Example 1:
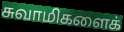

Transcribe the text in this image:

சுவாமிகளைக்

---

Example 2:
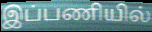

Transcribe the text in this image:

இப்பணியில்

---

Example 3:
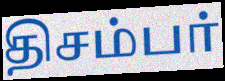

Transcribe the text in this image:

திசம்பர்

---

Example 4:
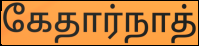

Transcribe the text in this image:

கேதார்நாத்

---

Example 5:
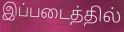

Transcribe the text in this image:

இப்படைத்தில்